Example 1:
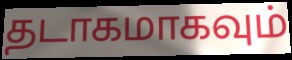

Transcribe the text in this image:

தடாகமாகவும்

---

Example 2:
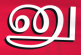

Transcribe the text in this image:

னு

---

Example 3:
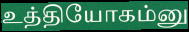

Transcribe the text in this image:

உத்தியோகம்னு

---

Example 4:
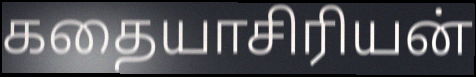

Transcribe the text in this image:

கதையாசிரியன்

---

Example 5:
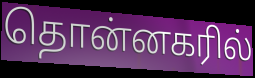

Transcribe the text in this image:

தொன்னகரில்